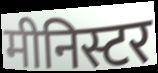
मीनिस्टर